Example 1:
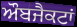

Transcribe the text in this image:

ਔਬਜੈਕਟਾਂ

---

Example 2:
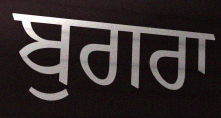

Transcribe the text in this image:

ਬੁਗਰਾ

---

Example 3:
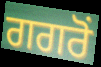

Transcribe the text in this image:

ਗਗਰੋਂ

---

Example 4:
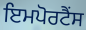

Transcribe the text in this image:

ਇਮਪੋਰਟੈਂਸ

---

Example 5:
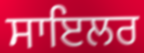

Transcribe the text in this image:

ਸਾਇਲਰ